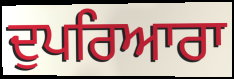
ਦੁਪਰਿਆਰਾ